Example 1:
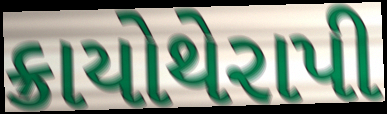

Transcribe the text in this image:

ક્રાયોથેરાપી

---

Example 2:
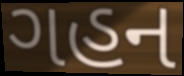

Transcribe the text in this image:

ગહન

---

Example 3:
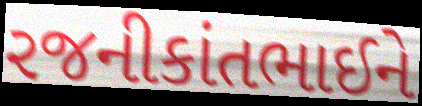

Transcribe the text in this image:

રજનીકાંતભાઈને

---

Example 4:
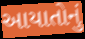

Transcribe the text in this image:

આયાતોનું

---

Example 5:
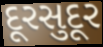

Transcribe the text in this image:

દૂરસુદૂર